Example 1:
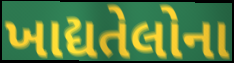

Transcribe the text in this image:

ખાદ્યતેલોના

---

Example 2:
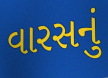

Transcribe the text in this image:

વારસનું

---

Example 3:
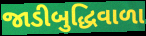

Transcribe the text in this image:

જાડીબુદ્ધિવાળા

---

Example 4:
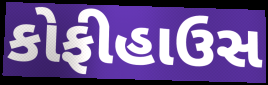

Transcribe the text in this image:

કોફીહાઉસ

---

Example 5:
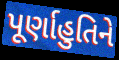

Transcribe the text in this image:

પૂર્ણાહુતિને